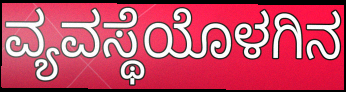
ವ್ಯವಸ್ಥೆಯೊಳಗಿನ